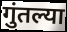
गुंतल्या